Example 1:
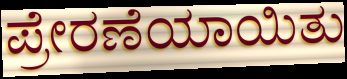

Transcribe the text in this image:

ಪ್ರೇರಣೆಯಾಯಿತು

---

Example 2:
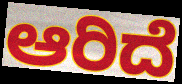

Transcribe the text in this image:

ಆರಿದೆ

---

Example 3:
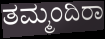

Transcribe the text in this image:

ತಮ್ಮಂದಿರಾ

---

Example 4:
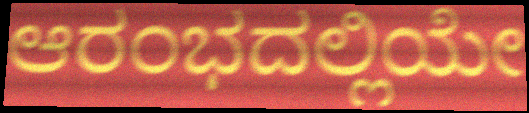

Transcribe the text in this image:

ಆರಂಭದಲ್ಲಿಯೇ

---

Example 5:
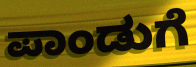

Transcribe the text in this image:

ಪಾಂಡುಗೆ